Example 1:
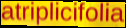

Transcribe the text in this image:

atriplicifolia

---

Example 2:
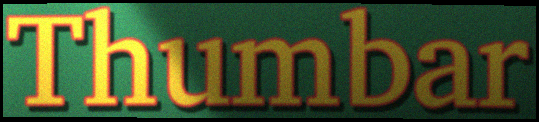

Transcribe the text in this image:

Thumbar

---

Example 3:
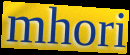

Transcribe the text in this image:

mhori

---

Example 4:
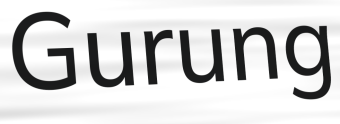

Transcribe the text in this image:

Gurung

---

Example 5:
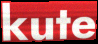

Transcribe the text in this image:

kute